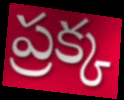
ప్రక్క